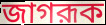
জাগরূক